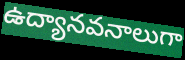
ఉద్యానవనాలుగా